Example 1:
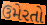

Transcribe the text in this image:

ઉમેરતો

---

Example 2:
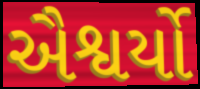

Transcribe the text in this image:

ઐશ્વર્યો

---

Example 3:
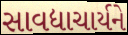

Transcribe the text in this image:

સાવદ્યાચાર્યને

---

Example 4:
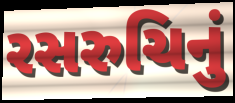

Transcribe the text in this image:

રસરુચિનું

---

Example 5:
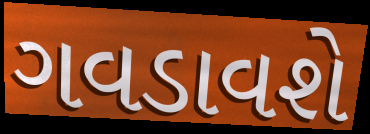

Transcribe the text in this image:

ગવડાવશે